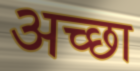
अच्‍छा